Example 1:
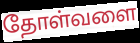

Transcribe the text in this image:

தோள்வளை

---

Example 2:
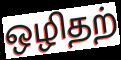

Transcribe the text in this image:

ஒழிதற்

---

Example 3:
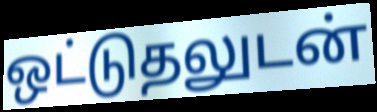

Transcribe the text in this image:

ஒட்டுதலுடன்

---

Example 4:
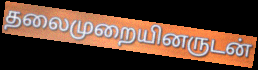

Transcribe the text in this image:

தலைமுறையினருடன்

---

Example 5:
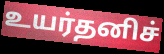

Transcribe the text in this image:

உயர்தனிச்